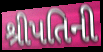
શ્રીપતિની